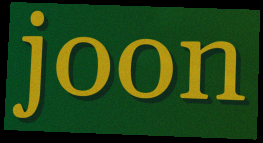
joon